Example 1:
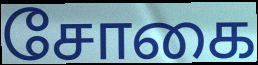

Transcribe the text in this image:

சோகை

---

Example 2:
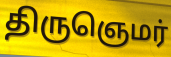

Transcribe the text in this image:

திருஞெமர்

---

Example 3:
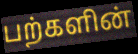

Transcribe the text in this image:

பற்களின்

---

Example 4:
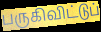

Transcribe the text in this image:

பருகிவிட்டுப்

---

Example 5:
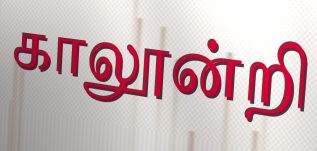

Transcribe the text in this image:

காலூன்றி